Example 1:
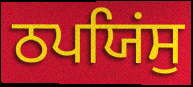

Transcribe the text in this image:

ਠਪਯਿਂਸੁ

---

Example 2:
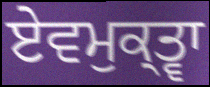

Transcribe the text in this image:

ਏਵਮੁਕ੍ਤ੍ਵਾ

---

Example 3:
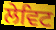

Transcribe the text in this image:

ਲੇਵਿਟ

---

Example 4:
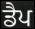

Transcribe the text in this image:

ਡੈਪ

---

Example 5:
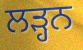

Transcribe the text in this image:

ਲੜ੍ਹਨ